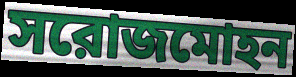
সরোজমোহন